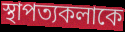
স্থাপত্যকলাকে